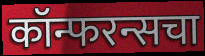
कॉन्फरन्सचा